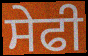
ਸੇਫੀ